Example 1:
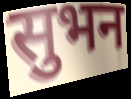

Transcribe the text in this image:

सुभन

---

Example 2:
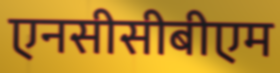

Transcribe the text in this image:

एनसीसीबीएम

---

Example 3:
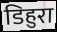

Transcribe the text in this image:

डिहुरा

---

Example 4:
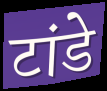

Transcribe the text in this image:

टांडे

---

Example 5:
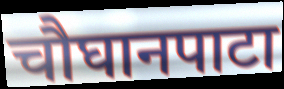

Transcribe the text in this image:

चौघानपाटा